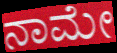
ನಾಮೇ